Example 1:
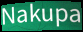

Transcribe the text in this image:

Nakupa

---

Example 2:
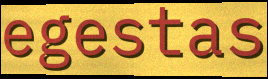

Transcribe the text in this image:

egestas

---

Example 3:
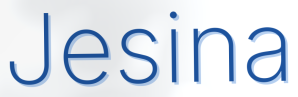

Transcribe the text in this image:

Jesina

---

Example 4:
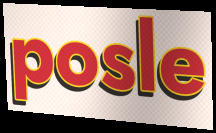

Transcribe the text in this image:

posle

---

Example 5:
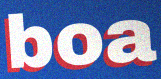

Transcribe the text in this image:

boa